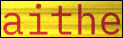
aithe